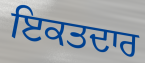
ਇਕਤਦਾਰ